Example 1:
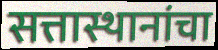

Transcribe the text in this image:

सत्तास्थानांचा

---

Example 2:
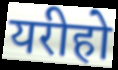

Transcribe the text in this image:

यरीहो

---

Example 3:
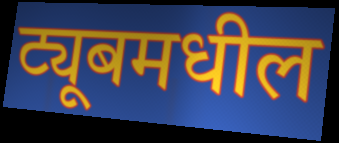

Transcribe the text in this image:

ट्यूबमधील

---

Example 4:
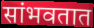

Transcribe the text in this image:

सांभवतात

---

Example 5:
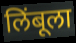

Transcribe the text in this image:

लिंबूला